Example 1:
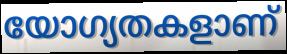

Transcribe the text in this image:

യോഗ്യതകളാണ്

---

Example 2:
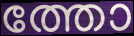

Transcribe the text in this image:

ത്തോ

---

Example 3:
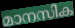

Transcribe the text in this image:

മാനസിക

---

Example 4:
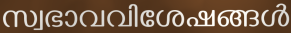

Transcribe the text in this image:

സ്വഭാവവിശേഷങ്ങൾ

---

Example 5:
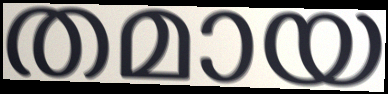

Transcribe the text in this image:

തമായ